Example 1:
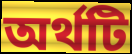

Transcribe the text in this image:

অর্থটি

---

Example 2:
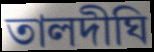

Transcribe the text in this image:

তালদীঘি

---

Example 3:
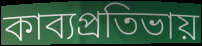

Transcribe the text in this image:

কাব্যপ্রতিভায়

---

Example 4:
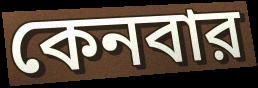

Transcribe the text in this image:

কেনবার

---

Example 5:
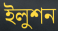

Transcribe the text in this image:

ইলুশন